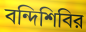
বন্দিশিবির